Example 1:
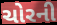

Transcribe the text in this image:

ચોરની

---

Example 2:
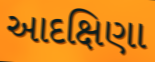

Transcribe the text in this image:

આદક્ષિણા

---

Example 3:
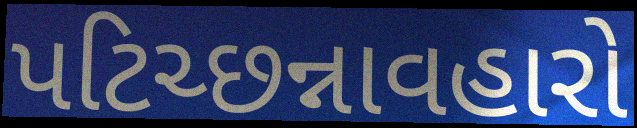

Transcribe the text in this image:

પટિચ્છન્નાવહારો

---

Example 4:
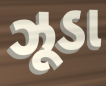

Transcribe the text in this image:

ઝૂડા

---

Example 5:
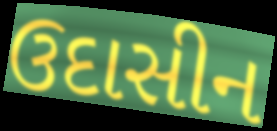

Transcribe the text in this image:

ઉદાસીન